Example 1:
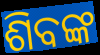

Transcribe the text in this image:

ଶିବଙ୍କ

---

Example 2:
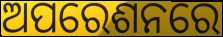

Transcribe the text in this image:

ଅପରେଶନରେ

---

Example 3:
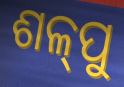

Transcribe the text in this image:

ଶଳ୍‍ପୁ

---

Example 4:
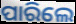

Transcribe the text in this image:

ପାରିଲେ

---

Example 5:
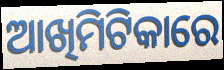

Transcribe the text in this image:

ଆଖିମିଟିକାରେ